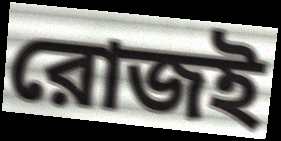
রোজই